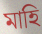
মাহি